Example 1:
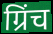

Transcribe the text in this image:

ग्रिंच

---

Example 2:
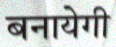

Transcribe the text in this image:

बनायेगी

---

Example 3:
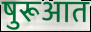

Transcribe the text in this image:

षुरूआत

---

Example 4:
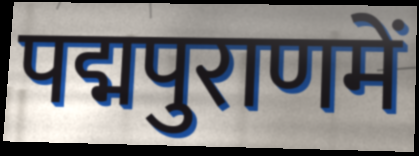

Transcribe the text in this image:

पद्मपुराणमें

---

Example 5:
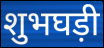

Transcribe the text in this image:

शुभघड़ी